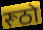
रूठो